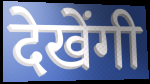
देखेंगी